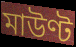
মাউণ্ট